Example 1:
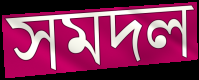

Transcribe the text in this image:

সমদল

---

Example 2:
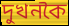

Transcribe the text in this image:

দুখনকৈ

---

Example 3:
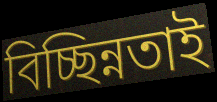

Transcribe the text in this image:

বিচ্ছিন্নতাই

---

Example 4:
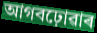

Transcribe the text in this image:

আগবঢ়োৱাৰ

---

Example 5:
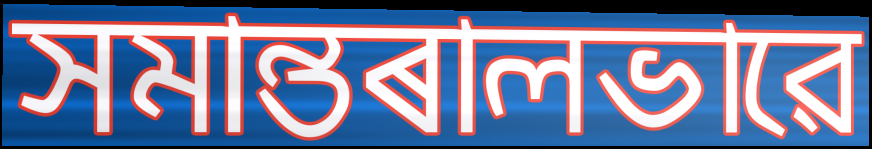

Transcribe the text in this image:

সমান্তৰালভাৱে